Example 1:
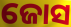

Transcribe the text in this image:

ଜୋସ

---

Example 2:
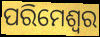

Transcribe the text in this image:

ପରିମେଶ୍ୱର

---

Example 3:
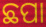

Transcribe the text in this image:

ଛପା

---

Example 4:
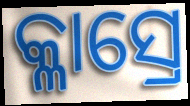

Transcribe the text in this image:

କ୍ଳାସ୍ରେ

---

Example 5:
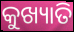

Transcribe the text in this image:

କୁଖ୍ୟାତି